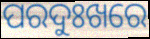
ପରଦୁଃଖରେ